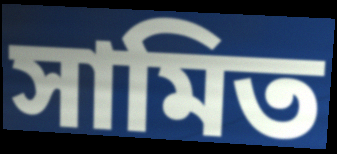
সামিত